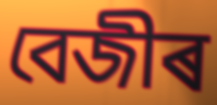
বেজীৰ